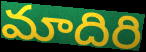
మాదిరి